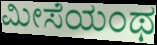
ಮೀಸೆಯಂಥ